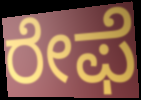
ರೇಫೆ